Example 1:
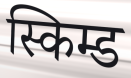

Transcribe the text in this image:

स्किम्ड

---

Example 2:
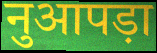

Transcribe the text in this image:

नुआपड़ा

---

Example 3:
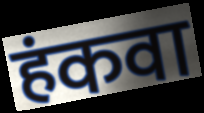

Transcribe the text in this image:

हंकवा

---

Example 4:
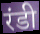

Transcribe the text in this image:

रंडी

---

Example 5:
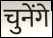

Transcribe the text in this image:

चुनेंगे